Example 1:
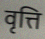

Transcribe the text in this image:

वृत्ति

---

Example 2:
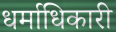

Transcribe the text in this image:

धर्माधिकारी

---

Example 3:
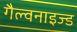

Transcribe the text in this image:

गैल्वनाइज्ड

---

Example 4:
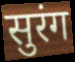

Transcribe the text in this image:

सुरंग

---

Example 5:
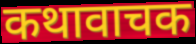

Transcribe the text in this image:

कथावाचक